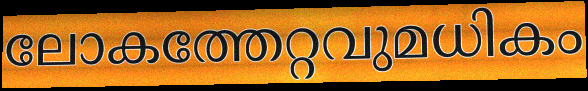
ലോകത്തേറ്റവുമധികം